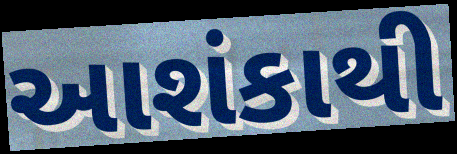
આશંકાથી